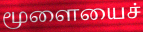
மூளையைச்